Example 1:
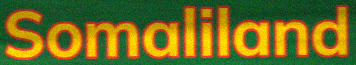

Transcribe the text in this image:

Somaliland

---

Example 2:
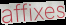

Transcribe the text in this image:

affixes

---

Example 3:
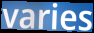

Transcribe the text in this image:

varies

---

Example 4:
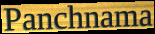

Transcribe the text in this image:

Panchnama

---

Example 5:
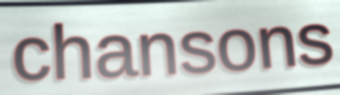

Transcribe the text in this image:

chansons